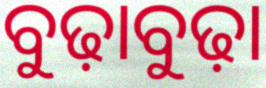
ବୁଢ଼ାବୁଢ଼ା